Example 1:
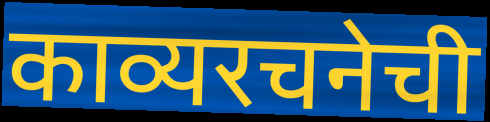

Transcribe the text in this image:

काव्यरचनेची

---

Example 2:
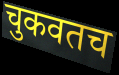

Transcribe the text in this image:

चुकवतच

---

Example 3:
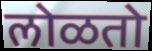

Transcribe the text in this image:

लोळतो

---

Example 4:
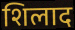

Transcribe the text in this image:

शिलाद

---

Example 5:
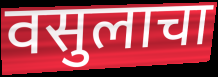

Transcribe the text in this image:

वसुलाचा